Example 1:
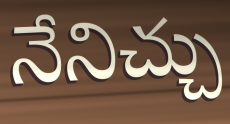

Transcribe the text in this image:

నేనిచ్చు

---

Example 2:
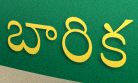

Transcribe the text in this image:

బారిక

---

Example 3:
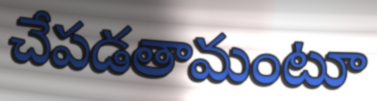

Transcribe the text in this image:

చేపడతామంటూ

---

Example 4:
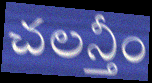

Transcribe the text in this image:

చలన్తీం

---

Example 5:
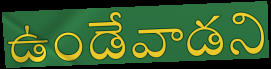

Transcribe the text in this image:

ఉండేవాడని